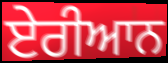
ਏਰੀਆਨ